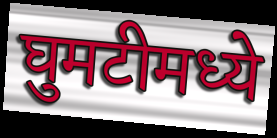
घुमटीमध्ये